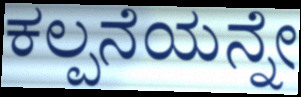
ಕಲ್ಪನೆಯನ್ನೇ